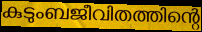
കുടുംബജീവിതത്തിന്റെ